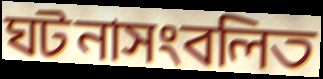
ঘটনাসংবলিত